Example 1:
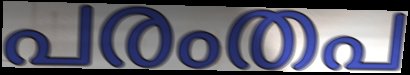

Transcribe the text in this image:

പരംതപ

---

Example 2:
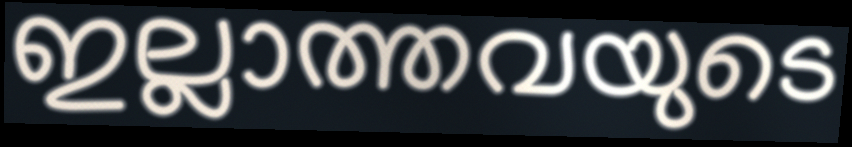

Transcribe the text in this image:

ഇല്ലാത്തവയുടെ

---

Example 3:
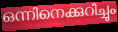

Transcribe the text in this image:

ഒന്നിനെക്കുറിച്ചും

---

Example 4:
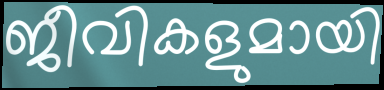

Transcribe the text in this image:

ജീവികളുമായി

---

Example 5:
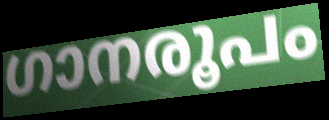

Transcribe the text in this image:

ഗാനരൂപം